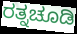
ರತ್ನಚೂಡಿ